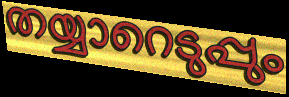
തയ്യാറെടുപ്പും